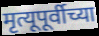
मृत्यूपूर्वीच्या